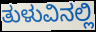
ತುಳುವಿನಲ್ಲಿ